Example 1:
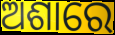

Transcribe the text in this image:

ଅଶାରେ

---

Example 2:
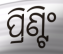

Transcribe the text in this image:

ପ୍ରିଣ୍ଟିଂ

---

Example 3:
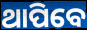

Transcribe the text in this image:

ଥାପିବେ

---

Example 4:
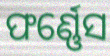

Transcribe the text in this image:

ଫର୍ଣ୍ଣେସ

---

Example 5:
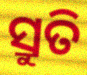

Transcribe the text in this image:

ସ୍ରୁତି